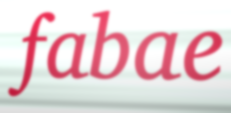
fabae